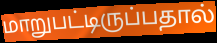
மாறுபட்டிருப்பதால்